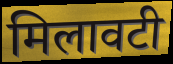
मिलावटी